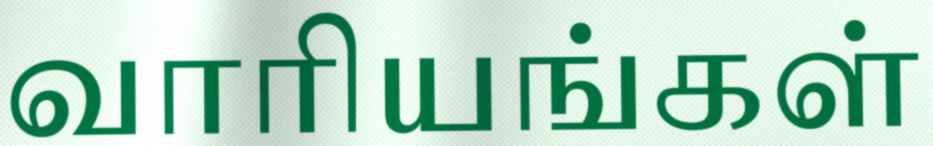
வாரியங்கள்